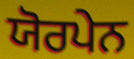
ਯੋਰਪੇਨ